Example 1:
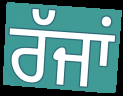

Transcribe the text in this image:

ਰੱਜਾਂ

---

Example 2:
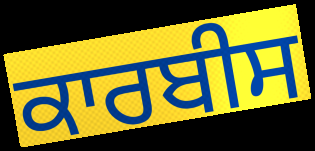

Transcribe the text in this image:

ਕਾਰਬੀਸ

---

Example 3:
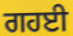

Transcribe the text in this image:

ਗਹਈ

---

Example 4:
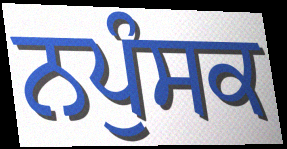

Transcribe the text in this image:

ਨਪੁੰਸਕ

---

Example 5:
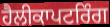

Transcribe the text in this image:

ਹੈਲੀਕਾਪਟਰਿੰਗ